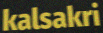
kalsakri